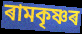
ৰামকৃষ্ণৰ